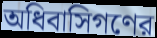
অধিবাসিগণের